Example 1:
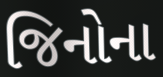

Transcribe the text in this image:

જિનોના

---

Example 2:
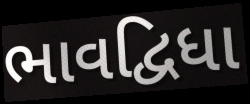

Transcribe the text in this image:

ભાવદ્વિધા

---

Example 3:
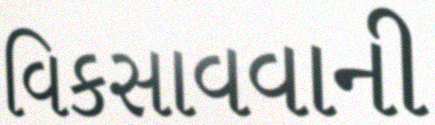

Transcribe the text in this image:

વિકસાવવાની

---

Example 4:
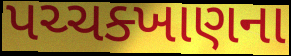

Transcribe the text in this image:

પચ્ચક્ખાણના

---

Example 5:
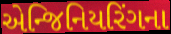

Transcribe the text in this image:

એન્જિનિયરિંગના